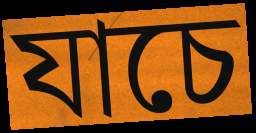
যাচে